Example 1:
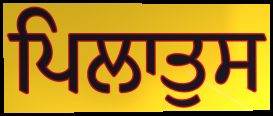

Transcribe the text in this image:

ਪਿਲਾਤੁਸ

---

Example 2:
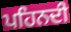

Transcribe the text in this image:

ਪਹਿਨਦੀ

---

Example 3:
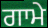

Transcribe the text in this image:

ਗਾਮੇ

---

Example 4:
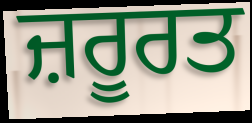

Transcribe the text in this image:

ਜ਼ਰੂਰਤ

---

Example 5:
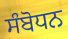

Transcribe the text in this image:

ਸੰਬੋਧਨ